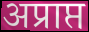
अप्राप्त